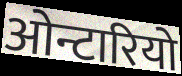
ओन्टारियो